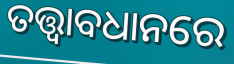
ତତ୍ତ୍ୱାବଧାନରେ